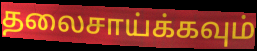
தலைசாய்க்கவும்